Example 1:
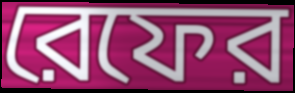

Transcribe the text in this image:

রেফের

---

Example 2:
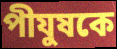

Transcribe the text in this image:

পীযুষকে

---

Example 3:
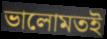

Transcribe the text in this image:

ভালোমতই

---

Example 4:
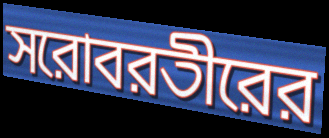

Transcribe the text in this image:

সরোবরতীরের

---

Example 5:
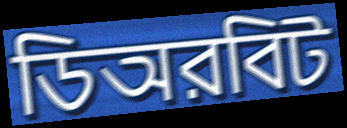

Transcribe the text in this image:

ডিঅরবিট